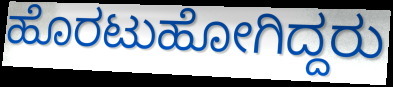
ಹೊರಟುಹೋಗಿದ್ದರು